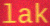
lak